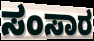
ಸಂಸಾರ